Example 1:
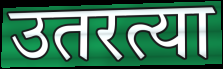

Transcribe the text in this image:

उतरत्या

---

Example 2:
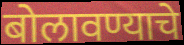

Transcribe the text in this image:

बोलावण्याचे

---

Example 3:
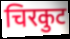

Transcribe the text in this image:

चिरकुट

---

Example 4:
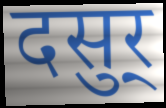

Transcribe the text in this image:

दसुर्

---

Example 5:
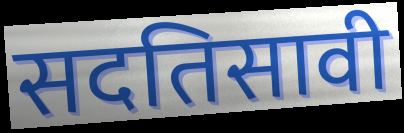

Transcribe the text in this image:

सदतिसावी